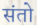
संतो